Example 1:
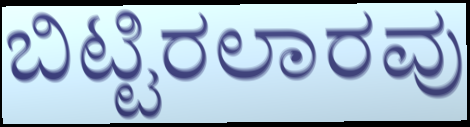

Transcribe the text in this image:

ಬಿಟ್ಟಿರಲಾರವು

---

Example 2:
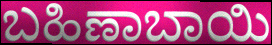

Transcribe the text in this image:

ಬಹಿಣಾಬಾಯಿ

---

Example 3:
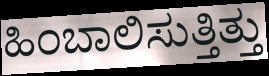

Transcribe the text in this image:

ಹಿಂಬಾಲಿಸುತ್ತಿತ್ತು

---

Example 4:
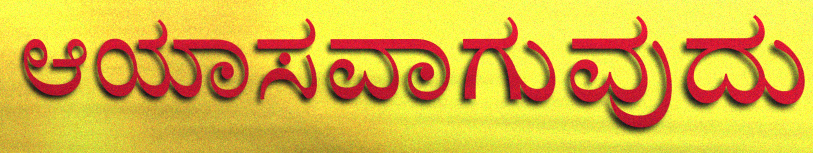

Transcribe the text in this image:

ಆಯಾಸವಾಗುವುದು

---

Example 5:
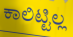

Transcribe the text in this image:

ಕಾಲಿಟ್ಟಿಲ್ಲ